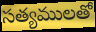
సత్యములతో